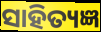
ସାହିତ୍ୟଜ୍ଞ